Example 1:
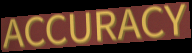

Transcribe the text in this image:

ACCURACY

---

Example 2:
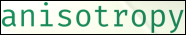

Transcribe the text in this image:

anisotropy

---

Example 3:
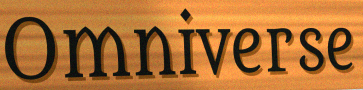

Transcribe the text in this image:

Omniverse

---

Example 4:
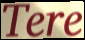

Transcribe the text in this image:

Tere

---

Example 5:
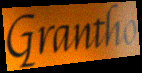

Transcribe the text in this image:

Grantho